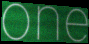
one